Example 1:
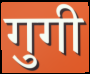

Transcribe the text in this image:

गुगी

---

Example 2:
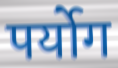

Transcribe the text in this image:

पर्योग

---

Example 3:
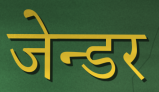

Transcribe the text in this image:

जेन्डर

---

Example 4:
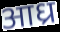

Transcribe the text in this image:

आध्र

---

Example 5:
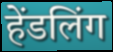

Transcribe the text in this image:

हेंडलिंग